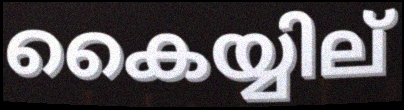
കൈയ്യില്